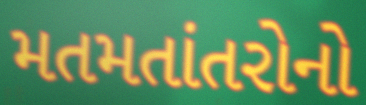
મતમતાંતરોનો